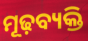
ମୂଢ଼ବ୍ୟକ୍ତି